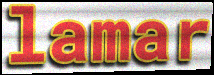
lamar